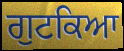
ਗੁਟਕਿਆ